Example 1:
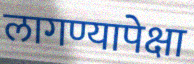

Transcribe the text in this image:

लागण्यापेक्षा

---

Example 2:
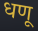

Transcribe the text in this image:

धणू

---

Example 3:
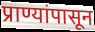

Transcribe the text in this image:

प्राण्यांपासून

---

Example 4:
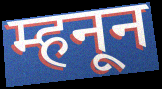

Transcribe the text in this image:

म्हनून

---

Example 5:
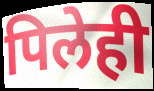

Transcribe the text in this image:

पिलेही